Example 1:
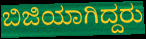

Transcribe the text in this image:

ಬಿಜಿಯಾಗಿದ್ದರು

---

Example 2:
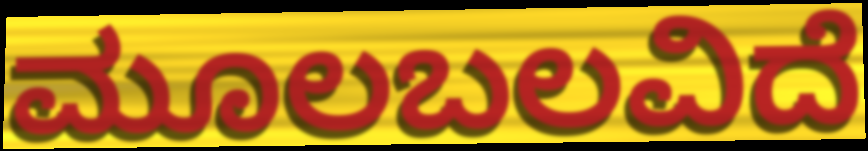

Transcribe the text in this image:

ಮೂಲಬಲವಿದೆ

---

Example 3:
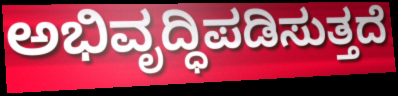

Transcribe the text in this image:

ಅಭಿವೃದ್ಧಿಪಡಿಸುತ್ತದೆ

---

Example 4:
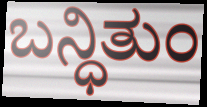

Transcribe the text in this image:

ಬನ್ಧಿತುಂ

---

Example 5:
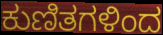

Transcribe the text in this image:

ಕುಣಿತಗಳಿಂದ